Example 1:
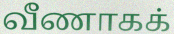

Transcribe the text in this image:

வீணாகக்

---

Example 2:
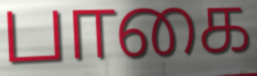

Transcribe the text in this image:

பாகை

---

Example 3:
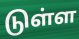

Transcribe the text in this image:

டுள்ள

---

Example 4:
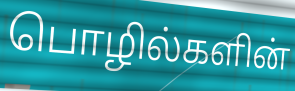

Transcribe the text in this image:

பொழில்களின்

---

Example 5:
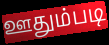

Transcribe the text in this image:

ஊதும்படி